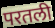
परतली